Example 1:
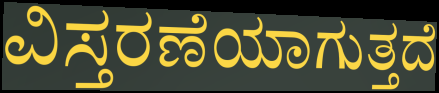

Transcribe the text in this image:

ವಿಸ್ತರಣೆಯಾಗುತ್ತದೆ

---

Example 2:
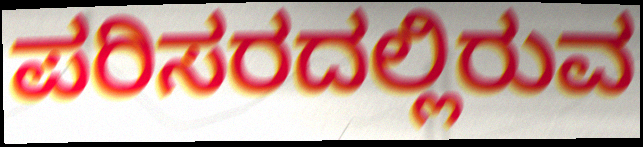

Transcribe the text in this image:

ಪರಿಸರದಲ್ಲಿರುವ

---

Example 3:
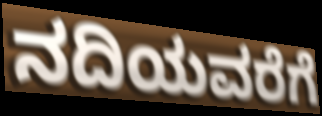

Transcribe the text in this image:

ನದಿಯವರೆಗೆ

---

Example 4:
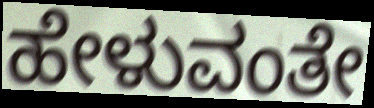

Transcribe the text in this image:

ಹೇಳುವಂತೇ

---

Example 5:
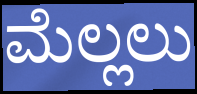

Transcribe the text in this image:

ಮೆಲ್ಲಲು